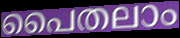
പൈതലാം